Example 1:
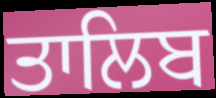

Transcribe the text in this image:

ਤਾਲਿਬ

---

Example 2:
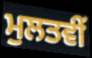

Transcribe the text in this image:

ਮੁਲਤਵੀਂ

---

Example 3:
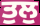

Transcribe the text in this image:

ਤੁਲੁ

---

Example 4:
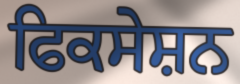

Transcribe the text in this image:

ਫਿਕਸੇਸ਼ਨ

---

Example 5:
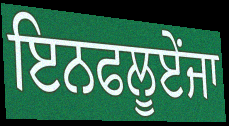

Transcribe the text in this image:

ਇਨਫਲੂਏਂਜਾ